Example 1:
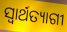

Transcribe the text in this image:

ସ୍ୱାର୍ଥତ୍ୟାଗୀ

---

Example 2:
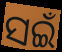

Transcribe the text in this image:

ସଇଁ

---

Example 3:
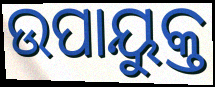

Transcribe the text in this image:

ଉପାୟୁକ୍ତ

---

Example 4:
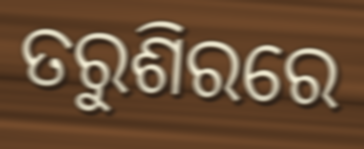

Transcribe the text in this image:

ତରୁଶିରରେ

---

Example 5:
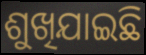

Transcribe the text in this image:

ଶୁଖିଯାଇଛି